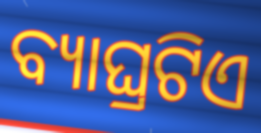
ବ୍ୟାଘ୍ରଟିଏ